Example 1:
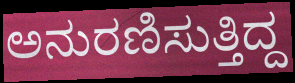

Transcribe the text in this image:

ಅನುರಣಿಸುತ್ತಿದ್ದ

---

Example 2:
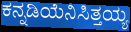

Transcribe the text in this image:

ಕನ್ನಡಿಯೆನಿಸಿತ್ತಯ್ಯ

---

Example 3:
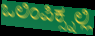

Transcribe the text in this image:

ಒಲಿಂಪಿಕ್ಸ್ನಲ್ಲಿ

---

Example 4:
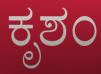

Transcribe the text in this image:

ಕೃಶಂ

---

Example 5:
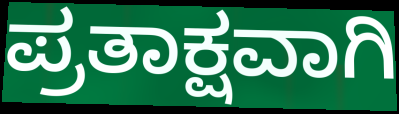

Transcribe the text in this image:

ಪ್ರತಾಕ್ಷವಾಗಿ